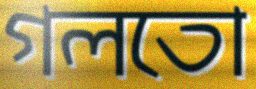
গলতো